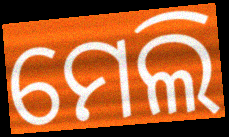
ମେଲି